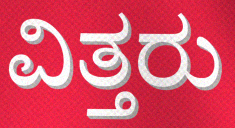
ವಿತ್ತರು